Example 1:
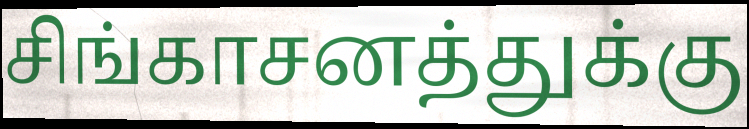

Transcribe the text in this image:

சிங்காசனத்துக்கு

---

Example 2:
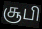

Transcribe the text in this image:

சூபி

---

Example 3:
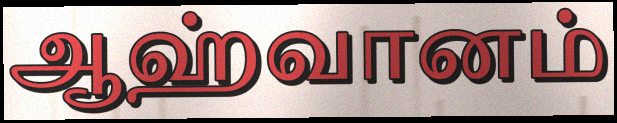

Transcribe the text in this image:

ஆஹ்வானம்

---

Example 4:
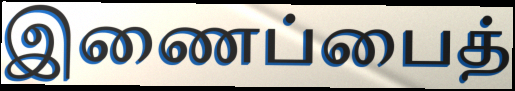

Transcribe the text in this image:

இணைப்பைத்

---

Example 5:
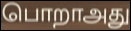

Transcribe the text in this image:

பொறாஅது